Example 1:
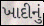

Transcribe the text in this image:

ખાદીનું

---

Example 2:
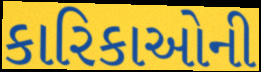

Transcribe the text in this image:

કારિકાઓની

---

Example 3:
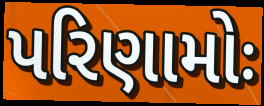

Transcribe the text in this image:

પરિણામોઃ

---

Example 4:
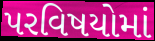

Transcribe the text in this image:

પરવિષયોમાં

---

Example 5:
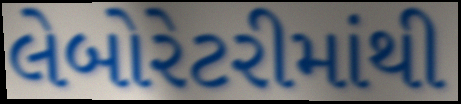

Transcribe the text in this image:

લેબોરેટરીમાંથી